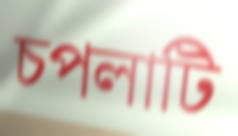
চপলাটি